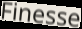
Finesse